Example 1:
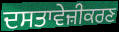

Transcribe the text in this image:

ਦਸਤਾਵੇਜ਼ੀਕਰਣ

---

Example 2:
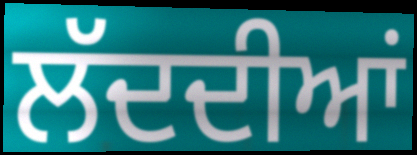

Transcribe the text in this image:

ਲੱਦਦੀਆਂ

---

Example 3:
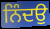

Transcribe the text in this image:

ਨਿੰਦਉ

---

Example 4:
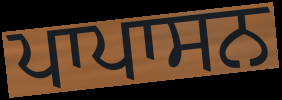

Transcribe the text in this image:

ਪਾਪਾਸਨ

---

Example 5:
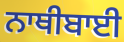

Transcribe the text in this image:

ਨਾਥੀਬਾਈ